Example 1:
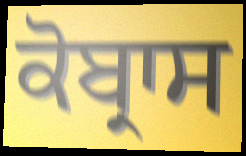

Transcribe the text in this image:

ਕੋਬ੍ਰਾਸ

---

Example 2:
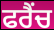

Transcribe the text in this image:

ਫਰੈਂਚ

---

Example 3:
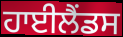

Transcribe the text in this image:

ਹਾਈਲੈਂਡਸ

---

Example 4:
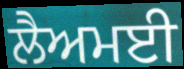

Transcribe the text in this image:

ਲੈਅਮਈ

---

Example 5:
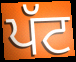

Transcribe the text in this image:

ਪੱਟ